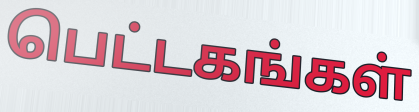
பெட்டகங்கள்